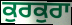
ਕੁਰਕੁਰਾ